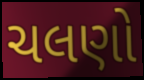
ચલણો